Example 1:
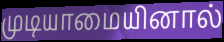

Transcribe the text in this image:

முடியாமையினால்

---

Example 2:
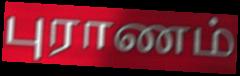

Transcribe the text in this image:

புராணம்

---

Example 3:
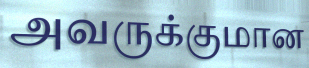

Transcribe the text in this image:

அவருக்குமான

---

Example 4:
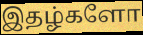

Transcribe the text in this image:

இதழ்களோ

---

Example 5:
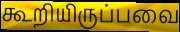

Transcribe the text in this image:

கூறியிருப்பவை